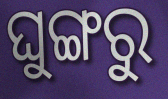
ଘୁଙ୍ଗରୁ